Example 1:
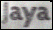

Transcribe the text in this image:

Jaya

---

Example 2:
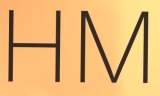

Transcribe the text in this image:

HM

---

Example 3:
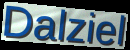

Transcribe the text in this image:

Dalziel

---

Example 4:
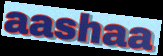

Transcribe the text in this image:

aashaa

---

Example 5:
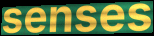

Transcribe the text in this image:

senses